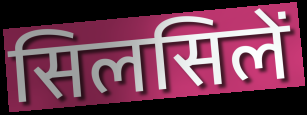
सिलसिलें